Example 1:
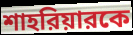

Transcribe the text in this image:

শাহরিয়ারকে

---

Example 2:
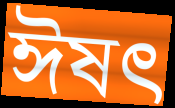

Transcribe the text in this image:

ঈষত্‍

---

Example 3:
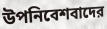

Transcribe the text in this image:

উপনিবেশবাদের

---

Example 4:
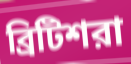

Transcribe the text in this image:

ব্রিটিশরা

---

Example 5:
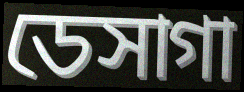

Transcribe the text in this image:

ডেসাগা